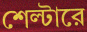
শেল্টারে